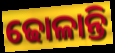
ଢୋଳାନ୍ତି